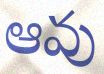
ఆవు